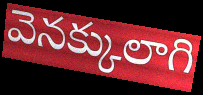
వెనక్కులాగి